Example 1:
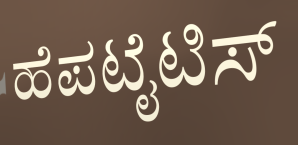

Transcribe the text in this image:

ಹೆಪಟೈಟಿಸ್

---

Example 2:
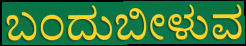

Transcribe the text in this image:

ಬಂದುಬೀಳುವ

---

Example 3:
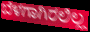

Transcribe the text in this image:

ಬೆಳಗಾಗಿರಲಿಲ್ಲ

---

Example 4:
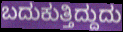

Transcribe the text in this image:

ಬದುಕುತ್ತಿದ್ದುದು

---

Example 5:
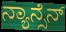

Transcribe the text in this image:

ನ್ಯಾನ್ಸೆನ್